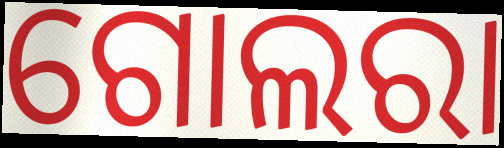
ଗୋଲରା